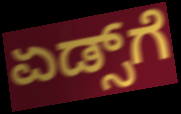
ಏಡ್ಸ್‌ಗೆ